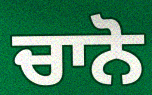
ਚਾਨੋ